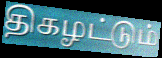
திகழட்டும்